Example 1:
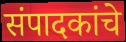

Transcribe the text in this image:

संपादकांचे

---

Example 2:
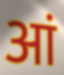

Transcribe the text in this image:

आं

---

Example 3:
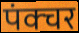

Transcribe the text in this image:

पंक्‍चर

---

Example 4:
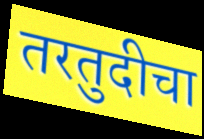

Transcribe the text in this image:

तरतुदीचा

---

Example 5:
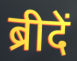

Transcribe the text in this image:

ब्रीदें